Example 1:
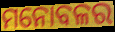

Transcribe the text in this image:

ମନୋବଳର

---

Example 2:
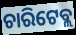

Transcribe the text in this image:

ଚାରିଟେବ୍ଲ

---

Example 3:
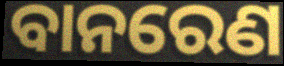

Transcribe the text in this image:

ବାନରେଣ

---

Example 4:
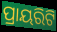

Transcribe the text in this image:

ପ୍ରାୟରିଟି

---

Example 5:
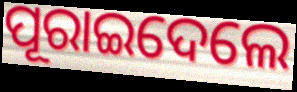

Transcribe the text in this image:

ପୂରାଇଦେଲେ